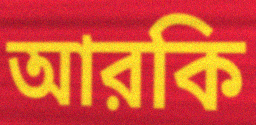
আরকি